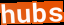
hubs